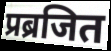
प्रब्रजित